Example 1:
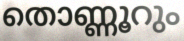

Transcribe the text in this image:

തൊണ്ണൂറും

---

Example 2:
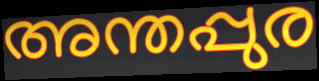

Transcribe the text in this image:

അന്തപ്പുര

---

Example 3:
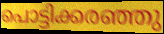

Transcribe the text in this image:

പൊട്ടിക്കരഞ്ഞു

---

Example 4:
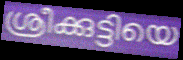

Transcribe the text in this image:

ശ്രീക്കുട്ടിയെ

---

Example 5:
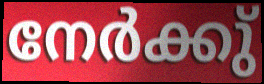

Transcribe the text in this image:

നേർക്കു്